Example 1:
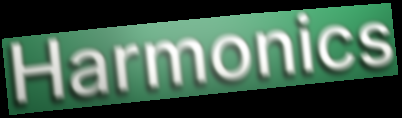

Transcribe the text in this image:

Harmonics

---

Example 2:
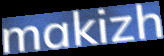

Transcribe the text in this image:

makizh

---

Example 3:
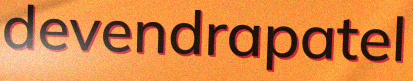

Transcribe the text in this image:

devendrapatel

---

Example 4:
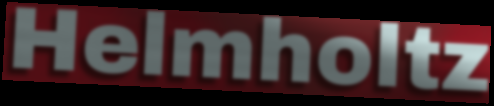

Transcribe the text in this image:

Helmholtz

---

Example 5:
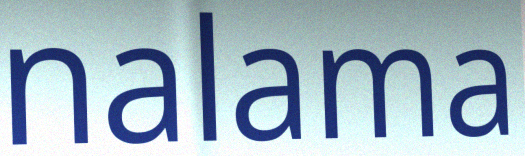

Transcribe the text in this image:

nalama